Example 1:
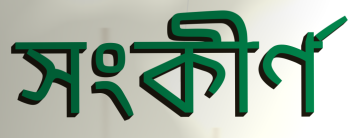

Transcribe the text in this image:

সংকীর্ণ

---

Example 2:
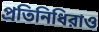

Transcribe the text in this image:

প্রতিনিধিরাও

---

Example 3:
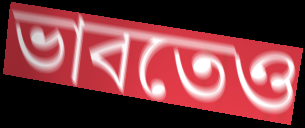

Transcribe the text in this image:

ভাবতেও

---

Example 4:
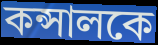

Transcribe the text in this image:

কন্সালকে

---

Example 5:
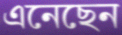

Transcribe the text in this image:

এনেছেন